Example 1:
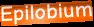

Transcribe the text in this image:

Epilobium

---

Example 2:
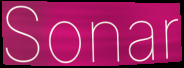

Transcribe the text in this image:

Sonar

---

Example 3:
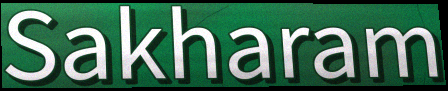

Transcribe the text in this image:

Sakharam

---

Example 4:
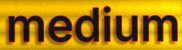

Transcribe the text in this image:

medium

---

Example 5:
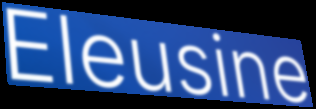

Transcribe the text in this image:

Eleusine